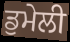
ਡੁਮੇਲੀ